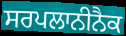
ਸਰਪਲਾਨੀਨੈਕ